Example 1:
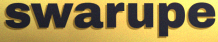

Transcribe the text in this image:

swarupe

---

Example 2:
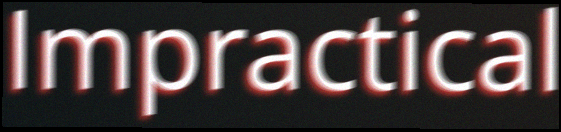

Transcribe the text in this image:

Impractical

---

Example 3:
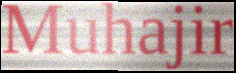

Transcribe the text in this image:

Muhajir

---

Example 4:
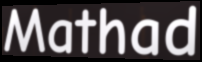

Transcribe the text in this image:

Mathad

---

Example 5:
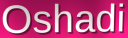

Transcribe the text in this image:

Oshadi